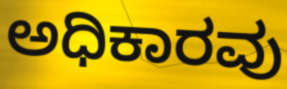
ಅಧಿಕಾರವು